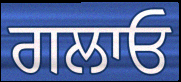
ਗਲਾਓ